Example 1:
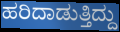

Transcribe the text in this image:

ಹರಿದಾಡುತ್ತಿದ್ದು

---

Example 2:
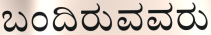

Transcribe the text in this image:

ಬಂದಿರುವವರು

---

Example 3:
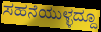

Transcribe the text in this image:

ಸಹನೆಯುಳ್ಳದ್ದೂ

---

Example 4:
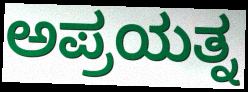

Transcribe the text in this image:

ಅಪ್ರಯತ್ನ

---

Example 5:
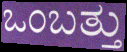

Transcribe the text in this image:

ಒಂಬತ್ತು